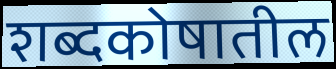
शब्दकोषातील